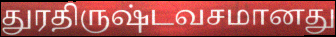
துரதிருஷ்டவசமானது